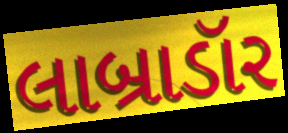
લાબ્રાડૉર